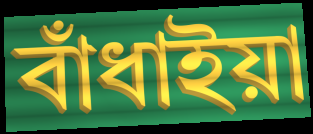
বাঁধাইয়া